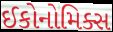
ઈકોનોમિક્સ